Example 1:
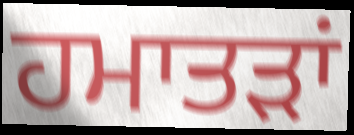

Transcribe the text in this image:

ਹਮਾਤੜਾਂ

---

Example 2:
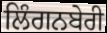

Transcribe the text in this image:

ਲਿੰਗਨਬੇਰੀ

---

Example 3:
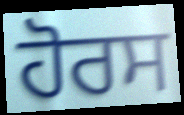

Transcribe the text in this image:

ਹੋਰਸ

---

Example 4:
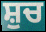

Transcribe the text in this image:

ਸ਼ੁਚ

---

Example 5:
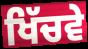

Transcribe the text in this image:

ਖਿੱਚਵੇ